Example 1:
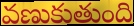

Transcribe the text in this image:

వణుకుతుంది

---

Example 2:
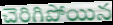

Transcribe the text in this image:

చెరిగిపోయిన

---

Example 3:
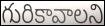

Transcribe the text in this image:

గురికావాలని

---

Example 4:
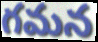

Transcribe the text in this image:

గమన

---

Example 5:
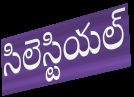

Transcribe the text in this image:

సిలెస్టియల్